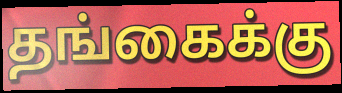
தங்கைக்கு